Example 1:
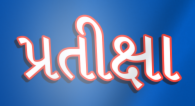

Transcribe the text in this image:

પ્રતીક્ષા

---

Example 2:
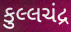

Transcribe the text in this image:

કુલ્લચંદ્ર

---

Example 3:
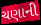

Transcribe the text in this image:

ચણાની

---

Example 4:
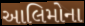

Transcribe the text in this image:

આલિમોના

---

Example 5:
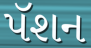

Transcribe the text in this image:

પૅશન